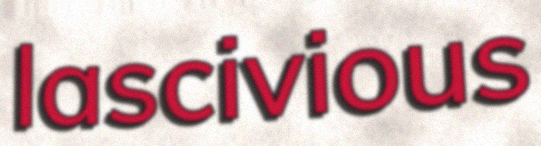
lascivious